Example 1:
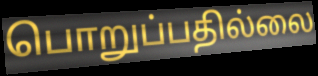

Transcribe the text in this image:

பொறுப்பதில்லை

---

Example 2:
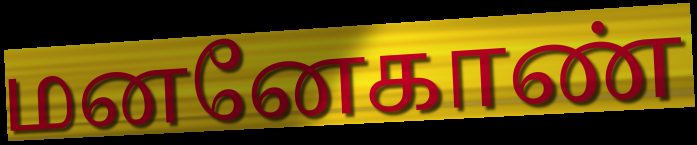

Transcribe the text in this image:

மனனேகாண்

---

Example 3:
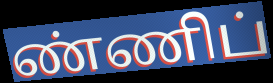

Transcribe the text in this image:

ண்ணிப்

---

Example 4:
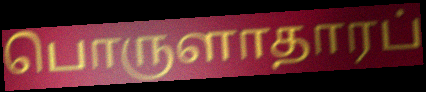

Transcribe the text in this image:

பொருளாதாரப்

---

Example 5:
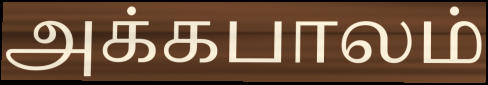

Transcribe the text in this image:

அக்கபாலம்